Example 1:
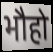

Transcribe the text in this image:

भौहो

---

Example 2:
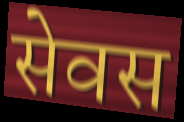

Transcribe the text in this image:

सेवस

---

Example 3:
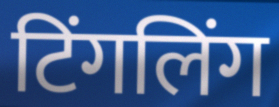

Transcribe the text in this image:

टिंगलिंग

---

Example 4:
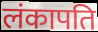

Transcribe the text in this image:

लंकापति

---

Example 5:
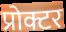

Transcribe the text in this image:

प्रोक्टर